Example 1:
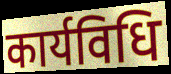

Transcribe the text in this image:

कार्यविधि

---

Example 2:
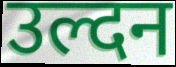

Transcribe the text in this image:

उल्दन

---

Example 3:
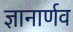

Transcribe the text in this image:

ज्ञानार्णव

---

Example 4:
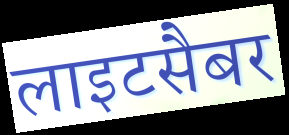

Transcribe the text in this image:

लाइटसैबर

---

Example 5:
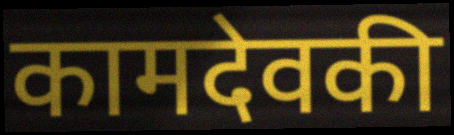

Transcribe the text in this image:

कामदेवकी